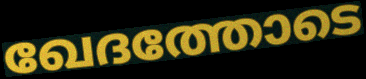
ഖേദത്തോടെ